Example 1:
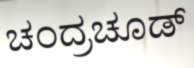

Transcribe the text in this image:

ಚಂದ್ರಚೂಡ್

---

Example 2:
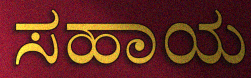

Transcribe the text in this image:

ಸಹಾಯ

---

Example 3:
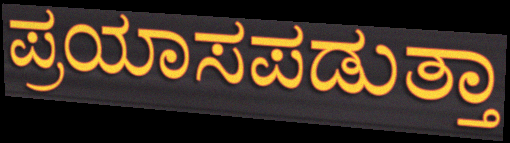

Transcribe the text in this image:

ಪ್ರಯಾಸಪಡುತ್ತಾ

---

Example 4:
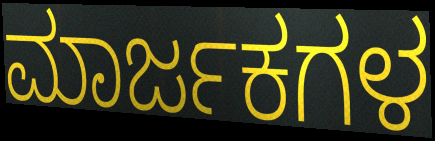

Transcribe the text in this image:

ಮಾರ್ಜಕಗಳ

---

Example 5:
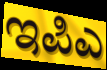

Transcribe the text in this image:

ಇಪಿಎ